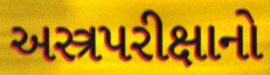
અસ્ત્રપરીક્ષાનો